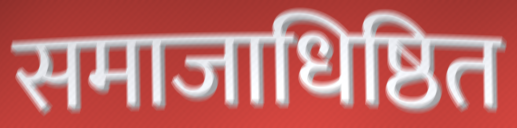
समाजाधिष्ठित